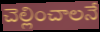
చెల్లించాలనే